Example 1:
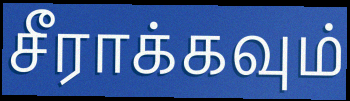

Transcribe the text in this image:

சீராக்கவும்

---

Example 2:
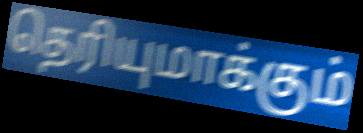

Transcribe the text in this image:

தெரியுமாக்கும்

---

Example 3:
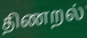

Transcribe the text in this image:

திணறல்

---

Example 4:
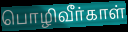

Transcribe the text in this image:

பொழிவீர்காள்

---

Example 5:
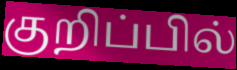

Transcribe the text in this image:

குறிப்பில்